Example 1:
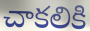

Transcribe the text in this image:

చాకలికి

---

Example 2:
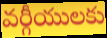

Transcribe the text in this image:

వర్గీయులకు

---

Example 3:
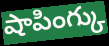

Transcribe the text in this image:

షాపింగ్కు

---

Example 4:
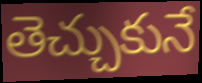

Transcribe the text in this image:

తెచ్చుకునే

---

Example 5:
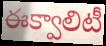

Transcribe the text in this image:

ఈక్వాలిటీ